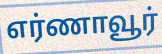
எர்ணாவூர்